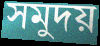
সমুদয়